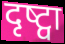
दृष्ट्वा